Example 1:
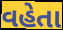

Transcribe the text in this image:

વહેતા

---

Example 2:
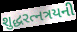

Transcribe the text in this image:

શુદ્ધરત્નત્રયની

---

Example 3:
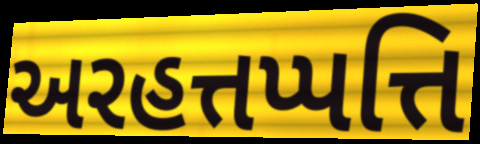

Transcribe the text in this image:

અરહત્તપ્પત્તિ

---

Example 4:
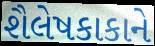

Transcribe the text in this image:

શૈલેષકાકાને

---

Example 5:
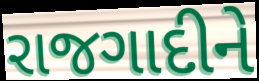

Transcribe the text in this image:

રાજગાદીને